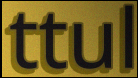
ttul